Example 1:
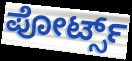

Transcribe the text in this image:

ಪೋರ್ಟ್ಸ್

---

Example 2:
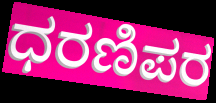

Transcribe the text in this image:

ಧರಣಿಪರ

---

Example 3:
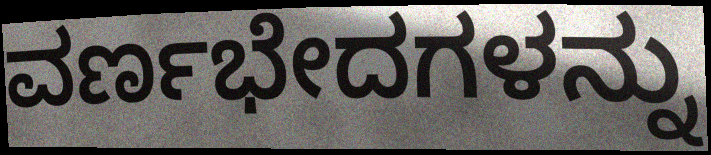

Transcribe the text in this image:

ವರ್ಣಭೇದಗಳನ್ನು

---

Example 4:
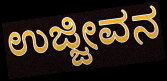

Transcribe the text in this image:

ಉಜ್ಜೀವನ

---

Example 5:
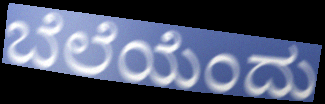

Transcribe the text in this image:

ಬೆಲೆಯೆಂದು